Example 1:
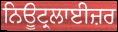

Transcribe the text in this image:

ਨਿਊਟ੍ਰਲਾਈਜ਼ਰ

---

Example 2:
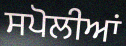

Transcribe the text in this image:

ਸਪੋਲੀਆਂ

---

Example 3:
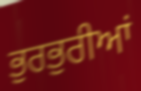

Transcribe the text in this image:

ਭੁਰਭੁਰੀਆਂ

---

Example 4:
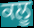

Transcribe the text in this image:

ਕਲੂ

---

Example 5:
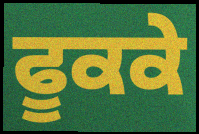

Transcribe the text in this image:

ਫੂਕਕੇ